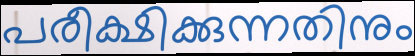
പരീക്ഷിക്കുന്നതിനും